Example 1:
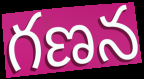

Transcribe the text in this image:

గణన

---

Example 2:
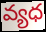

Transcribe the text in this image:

వ్యధ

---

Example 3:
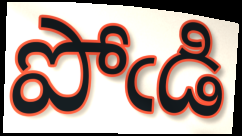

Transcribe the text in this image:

పోఁడి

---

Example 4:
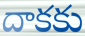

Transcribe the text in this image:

దాకకు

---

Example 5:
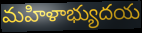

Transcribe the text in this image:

మహిళాభ్యుదయ